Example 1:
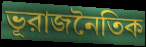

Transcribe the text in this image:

ভূরাজনৈতিক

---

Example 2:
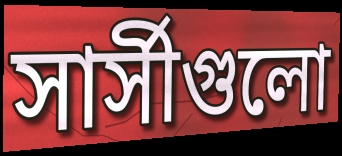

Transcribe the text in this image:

সার্সীগুলো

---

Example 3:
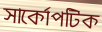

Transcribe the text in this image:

সার্কোপটিক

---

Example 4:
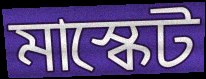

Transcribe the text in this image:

মাস্কেট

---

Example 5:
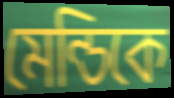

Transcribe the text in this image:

মেন্ডিকে